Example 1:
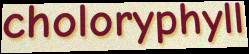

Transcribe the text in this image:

choloryphyll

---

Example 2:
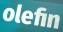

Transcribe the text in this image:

olefin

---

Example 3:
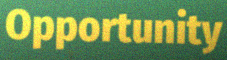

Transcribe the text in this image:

Opportunity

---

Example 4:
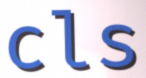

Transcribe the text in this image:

cls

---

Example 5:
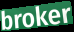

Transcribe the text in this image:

broker